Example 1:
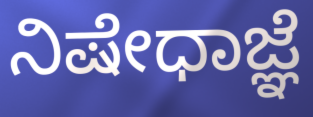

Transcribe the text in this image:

ನಿಷೇಧಾಜ್ಞೆ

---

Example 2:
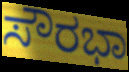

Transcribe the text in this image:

ಸೌರಭಾ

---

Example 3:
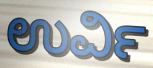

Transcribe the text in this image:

ಉರ್ವಿ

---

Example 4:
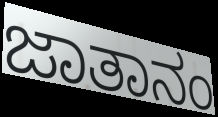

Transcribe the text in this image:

ಜಾತಾನಂ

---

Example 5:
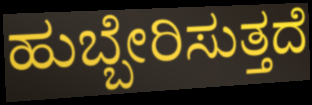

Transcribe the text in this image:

ಹುಬ್ಬೇರಿಸುತ್ತದೆ